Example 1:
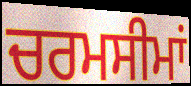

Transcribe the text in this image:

ਚਰਮਸੀਮਾਂ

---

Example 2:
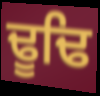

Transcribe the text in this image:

ਢੂਢਿ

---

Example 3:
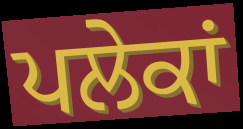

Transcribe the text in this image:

ਪਲੇਕਾਂ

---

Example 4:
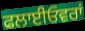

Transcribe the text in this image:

ਫਲਾਈਓਵਰਾਂ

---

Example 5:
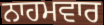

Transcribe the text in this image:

ਨਾਹਮਵਾਰ